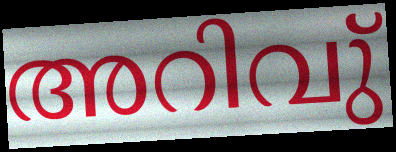
അറിവു്